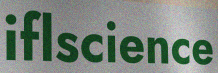
iflscience